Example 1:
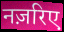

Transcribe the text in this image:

नज़रिए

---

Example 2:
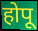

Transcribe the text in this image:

होपू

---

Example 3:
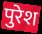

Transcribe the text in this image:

पुरेश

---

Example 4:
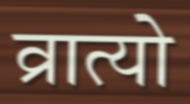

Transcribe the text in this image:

व्रात्यो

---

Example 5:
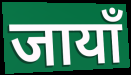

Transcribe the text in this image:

जायाँ